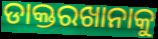
ଡାକ୍ତରଖାନାକୁ